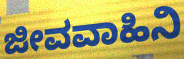
ಜೀವವಾಹಿನಿ